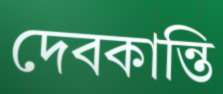
দেবকান্তি